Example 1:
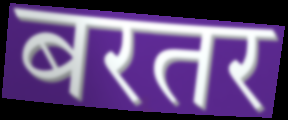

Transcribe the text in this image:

बरतर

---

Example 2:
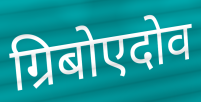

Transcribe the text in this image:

ग्रिबोएदोव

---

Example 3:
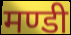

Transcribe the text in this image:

मण्डी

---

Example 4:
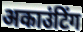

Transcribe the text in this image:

अकाउंटिंग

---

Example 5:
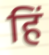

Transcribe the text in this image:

हिं